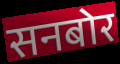
सनबोर